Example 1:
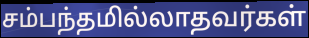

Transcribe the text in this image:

சம்பந்தமில்லாதவர்கள்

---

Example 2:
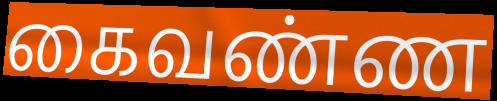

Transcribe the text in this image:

கைவண்ண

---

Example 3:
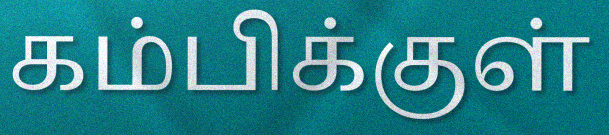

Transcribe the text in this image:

கம்பிக்குள்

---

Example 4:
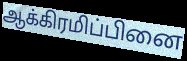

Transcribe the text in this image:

ஆக்கிரமிப்பினை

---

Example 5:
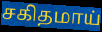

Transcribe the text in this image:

சகிதமாய்